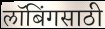
लॉबिंगसाठी